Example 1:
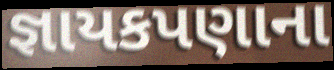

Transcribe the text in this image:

જ્ઞાયકપણાના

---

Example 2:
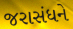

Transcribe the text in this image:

જરાસંધને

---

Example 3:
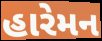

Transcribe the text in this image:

હારેમન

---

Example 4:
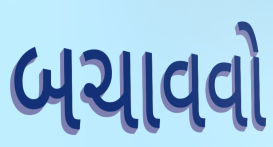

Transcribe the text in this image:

બચાવવો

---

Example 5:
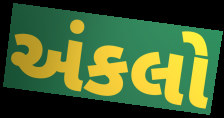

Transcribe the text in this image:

અંકલો